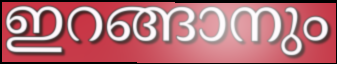
ഇറങ്ങാനും